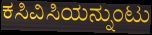
ಕಸಿವಿಸಿಯನ್ನುಂಟು